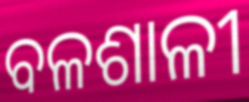
ବଳଶାଳୀ